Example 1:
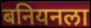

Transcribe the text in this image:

बनियनला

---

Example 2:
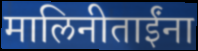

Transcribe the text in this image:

मालिनीताईंना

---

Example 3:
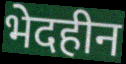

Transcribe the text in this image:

भेदहीन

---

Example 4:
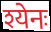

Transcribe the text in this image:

श्येनः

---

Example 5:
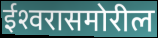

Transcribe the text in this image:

ईश्वरासमोरील